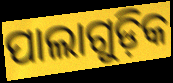
ପାଲାଗୁଡ଼ିକ